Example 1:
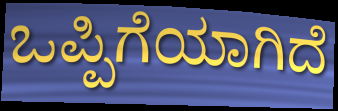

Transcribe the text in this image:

ಒಪ್ಪಿಗೆಯಾಗಿದೆ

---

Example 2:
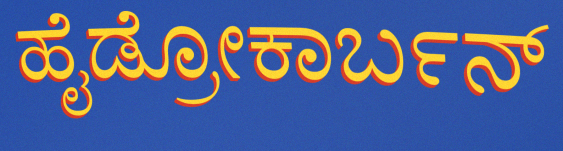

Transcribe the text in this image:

ಹೈಡ್ರೋಕಾರ್ಬನ್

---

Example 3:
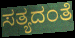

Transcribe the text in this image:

ಸತ್ಯದಂತೆ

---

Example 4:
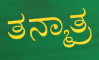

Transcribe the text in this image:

ತನ್ಮಾತ್ರ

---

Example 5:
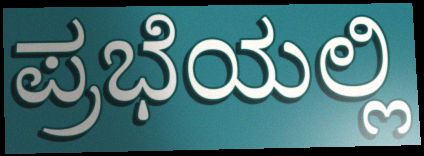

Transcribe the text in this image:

ಪ್ರಭೆಯಲ್ಲಿ